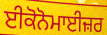
ਈਕੋਨੋਮਾਈਜ਼ਰ